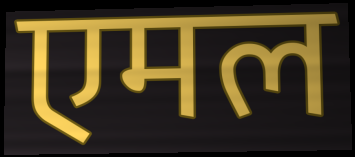
एमल